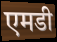
एमडी